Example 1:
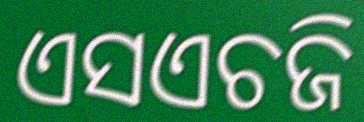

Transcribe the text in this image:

ଏସଏଚଜି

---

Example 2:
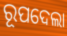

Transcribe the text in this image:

ରୂପଦେଲା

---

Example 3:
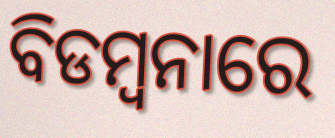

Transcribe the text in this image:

ବିଡମ୍ବନାରେ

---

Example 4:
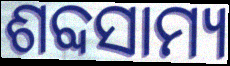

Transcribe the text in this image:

ଶବ୍ଦସାମ୍ୟ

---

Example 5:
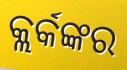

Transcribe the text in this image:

କ୍ଲର୍କଙ୍କର